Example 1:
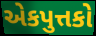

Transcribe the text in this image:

એકપુત્તકો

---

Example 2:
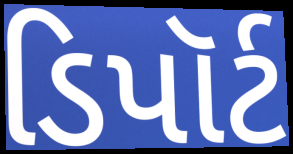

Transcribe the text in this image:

ડિપૉર્ટ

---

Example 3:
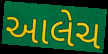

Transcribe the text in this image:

આલેચ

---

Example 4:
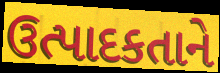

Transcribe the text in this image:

ઉત્પાદકતાને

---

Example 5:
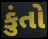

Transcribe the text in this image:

કુંતો